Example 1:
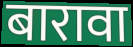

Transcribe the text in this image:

बारावा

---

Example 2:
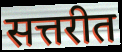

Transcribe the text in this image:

सत्तरीत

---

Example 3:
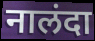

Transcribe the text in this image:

नालंदा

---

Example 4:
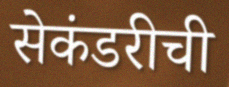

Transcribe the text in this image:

सेकंडरीची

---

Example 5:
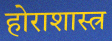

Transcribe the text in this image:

होराशास्त्र